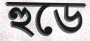
হুডে